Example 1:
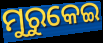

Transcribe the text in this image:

ମୁରୁକେଇ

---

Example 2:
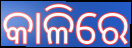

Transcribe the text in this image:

କାଳିରେ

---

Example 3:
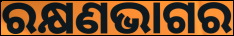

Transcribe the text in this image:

ରକ୍ଷଣଭାଗର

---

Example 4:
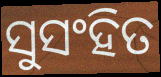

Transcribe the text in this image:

ସୁସଂହିତ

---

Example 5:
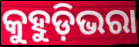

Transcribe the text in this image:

କୁହୁଡ଼ିଭରା